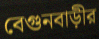
বেগুনবাড়ীর